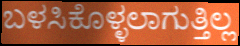
ಬಳಸಿಕೊಳ್ಳಲಾಗುತ್ತಿಲ್ಲ